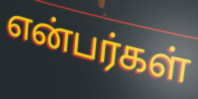
என்பர்கள்